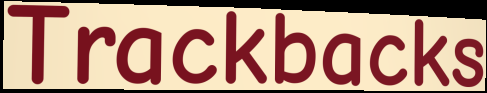
Trackbacks